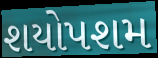
શયોપશમ